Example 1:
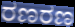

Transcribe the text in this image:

ರಣರಣ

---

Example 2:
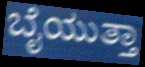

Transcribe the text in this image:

ಬೈಯುತ್ತಾ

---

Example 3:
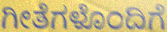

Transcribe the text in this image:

ಗೀತೆಗಳೊಂದಿಗೆ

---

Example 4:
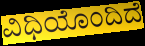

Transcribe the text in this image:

ವಿಧಿಯೊಂದಿದೆ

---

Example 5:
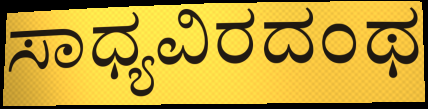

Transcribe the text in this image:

ಸಾಧ್ಯವಿರದಂಥ